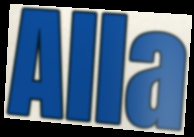
Alla